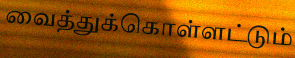
வைத்துக்கொள்ளட்டும்